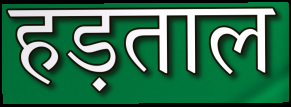
हड़ताल